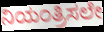
ನಿಯಂತ್ರಿಸಲೇ